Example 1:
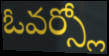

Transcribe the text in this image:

ఓవర్స్లో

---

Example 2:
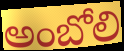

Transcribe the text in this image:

అంబోలి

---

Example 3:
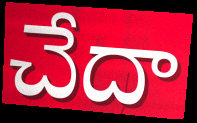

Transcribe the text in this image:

చేదా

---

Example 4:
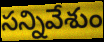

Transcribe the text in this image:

సన్నివేశుం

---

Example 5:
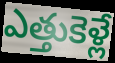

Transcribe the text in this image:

ఎత్తుకెళ్లే